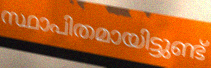
സ്ഥാപിതമായിട്ടുണ്ട്